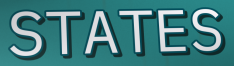
STATES